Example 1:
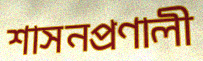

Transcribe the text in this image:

শাসনপ্রণালী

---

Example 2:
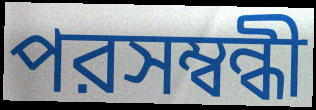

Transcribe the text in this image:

পরসম্বন্ধী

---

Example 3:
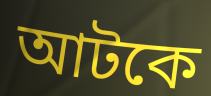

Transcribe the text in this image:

আটকে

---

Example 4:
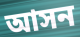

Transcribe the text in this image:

আসন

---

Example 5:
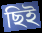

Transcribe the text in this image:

ছিই